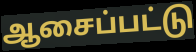
ஆசைப்பட்டு